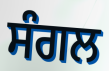
ਸੰਗਲ